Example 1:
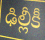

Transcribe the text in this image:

ఢిల్లీకీ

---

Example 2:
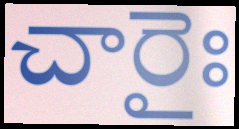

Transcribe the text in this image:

చారైః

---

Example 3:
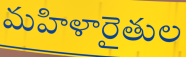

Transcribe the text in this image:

మహిళారైతుల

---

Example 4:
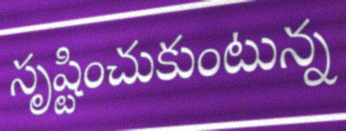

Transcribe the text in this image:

సృష్టించుకుంటున్న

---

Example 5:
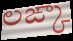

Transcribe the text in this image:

లఙ్కా